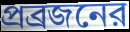
প্রব্রজনের